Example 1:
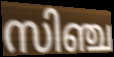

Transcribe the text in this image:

സിഞ്ച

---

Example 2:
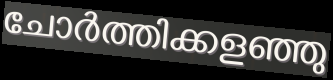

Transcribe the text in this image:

ചോർത്തിക്കളഞ്ഞു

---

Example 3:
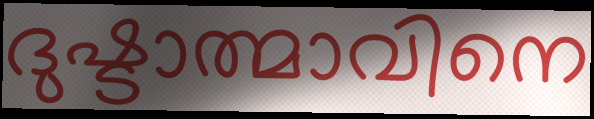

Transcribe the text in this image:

ദുഷ്ടാത്മാവിനെ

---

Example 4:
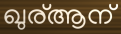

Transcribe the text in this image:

ഖുര്ആന്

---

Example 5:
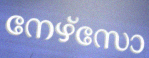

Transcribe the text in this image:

നേഴ്സോ